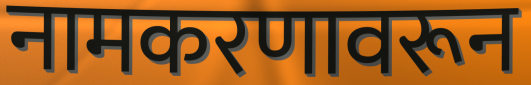
नामकरणावरून